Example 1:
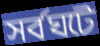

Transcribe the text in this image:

সর্বঘটে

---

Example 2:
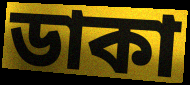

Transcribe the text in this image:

ডাকা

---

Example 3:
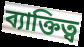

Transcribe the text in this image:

ব্যাক্তিত্ব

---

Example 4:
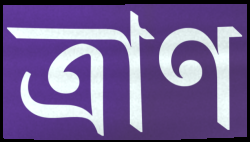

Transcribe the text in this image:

ত্রাণ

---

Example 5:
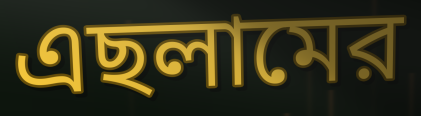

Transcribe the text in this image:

এছলামের